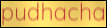
pudhacha